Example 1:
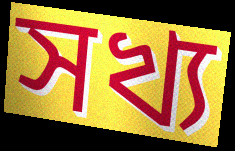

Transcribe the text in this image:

সখ্য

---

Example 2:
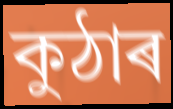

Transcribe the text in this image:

কুঠাৰ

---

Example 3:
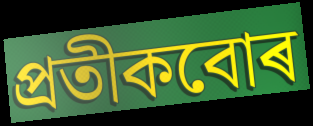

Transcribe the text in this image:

প্ৰতীকবোৰ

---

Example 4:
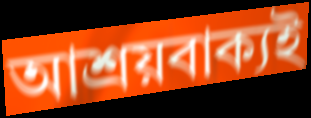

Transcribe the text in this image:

আশ্ৰয়বাক্যই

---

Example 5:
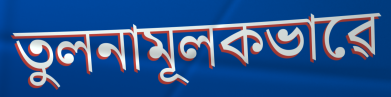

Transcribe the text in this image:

তুলনামূলকভাৱে